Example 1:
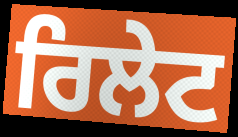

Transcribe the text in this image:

ਰਿਲੇਟ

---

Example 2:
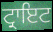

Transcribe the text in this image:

ਟ੍ਰਾਇਟ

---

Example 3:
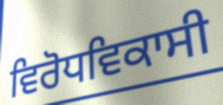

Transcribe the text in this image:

ਵਿਰੋਧਵਿਕਾਸੀ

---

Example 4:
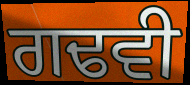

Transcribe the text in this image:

ਗਢਵੀ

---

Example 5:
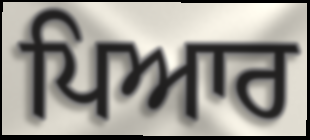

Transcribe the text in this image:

ਪਿਆਰ